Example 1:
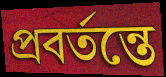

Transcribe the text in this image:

প্রবর্তন্তে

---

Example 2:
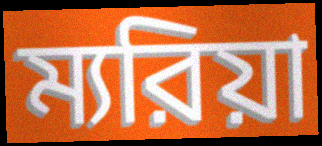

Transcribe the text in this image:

ম্যরিয়া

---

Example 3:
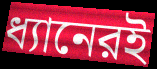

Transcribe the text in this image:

ধ্যানেরই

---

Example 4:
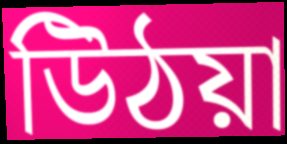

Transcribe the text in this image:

উিঠয়া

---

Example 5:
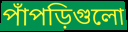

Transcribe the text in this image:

পাঁপড়িগুলো